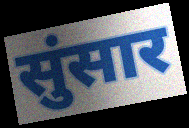
सुंसार